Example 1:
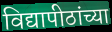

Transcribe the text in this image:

विद्यापीठांच्या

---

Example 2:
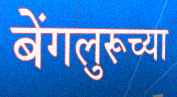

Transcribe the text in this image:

बेंगलुरूच्या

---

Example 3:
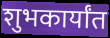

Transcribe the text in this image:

शुभकार्यांत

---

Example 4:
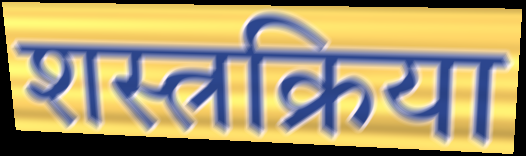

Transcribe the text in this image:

शस्त्रक्रिया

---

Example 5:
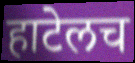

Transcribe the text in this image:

हाटेलच